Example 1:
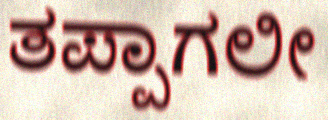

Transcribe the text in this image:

ತಪ್ಪಾಗಲೀ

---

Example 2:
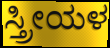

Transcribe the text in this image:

ಸ್ತ್ರೀಯಳ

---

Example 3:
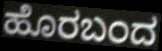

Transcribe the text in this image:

ಹೊರಬಂದ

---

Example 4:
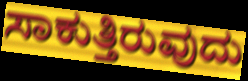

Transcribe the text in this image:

ಸಾಕುತ್ತಿರುವುದು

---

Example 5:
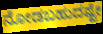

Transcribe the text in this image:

ನೋಡಬಹುದಷ್ಟೇ